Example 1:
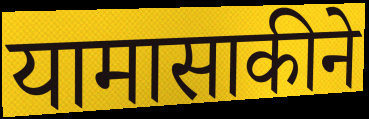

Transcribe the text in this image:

यामासाकीने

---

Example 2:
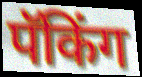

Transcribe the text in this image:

पॅकिंग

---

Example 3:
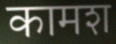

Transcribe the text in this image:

कामश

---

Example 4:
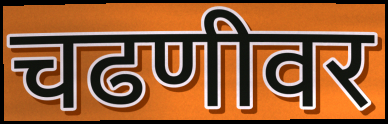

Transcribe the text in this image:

चढणीवर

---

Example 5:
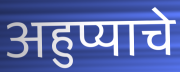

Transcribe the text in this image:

अहुप्याचे